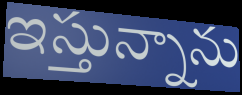
ఇస్తున్నాను